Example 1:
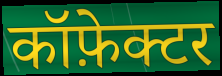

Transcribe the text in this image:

कॉफ़ेक्टर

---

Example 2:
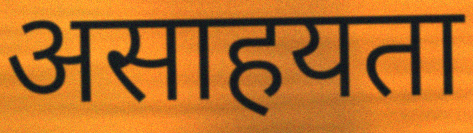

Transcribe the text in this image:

असाहयता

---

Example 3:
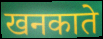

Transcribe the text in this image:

खनकाते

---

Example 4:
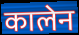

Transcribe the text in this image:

कालेन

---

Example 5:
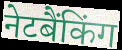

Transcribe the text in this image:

नेटबैंकिंग